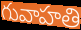
గువాహతి